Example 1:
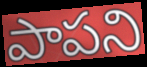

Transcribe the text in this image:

పాపని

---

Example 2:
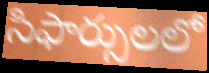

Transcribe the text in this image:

సిఫార్సులలో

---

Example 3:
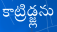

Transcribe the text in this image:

కాట్రిడ్జ్లను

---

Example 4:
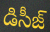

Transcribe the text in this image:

డిసీజ్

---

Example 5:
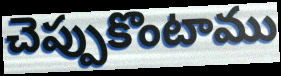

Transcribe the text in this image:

చెప్పుకొంటాము